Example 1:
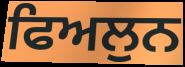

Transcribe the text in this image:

ਫਿਅਲੁਨ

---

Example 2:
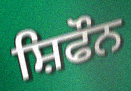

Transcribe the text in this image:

ਸ਼ਿਫੌਨ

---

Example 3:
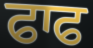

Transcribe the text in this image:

ਫਾਫ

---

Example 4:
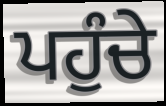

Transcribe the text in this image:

ਪਹੁੰਚੇ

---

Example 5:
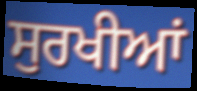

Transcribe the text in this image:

ਸੁਰਖੀਆਂ